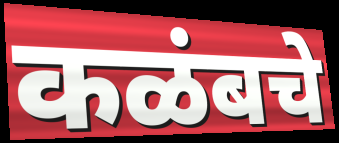
कळंबचे